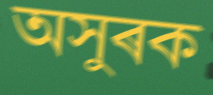
অসুৰক